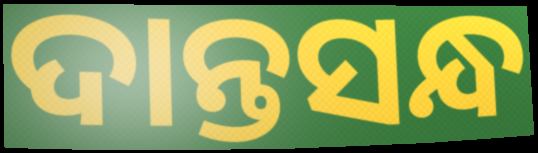
ଦାନ୍ତସନ୍ଧ